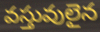
వస్తువులైన